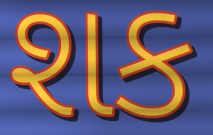
શક